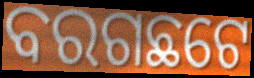
ବରଗଛଟେ